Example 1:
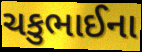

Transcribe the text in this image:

ચકુભાઈના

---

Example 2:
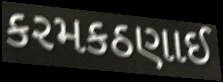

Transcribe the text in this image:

કરમકઠણાઈ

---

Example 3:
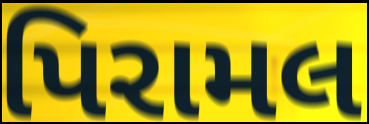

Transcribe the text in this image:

પિરામલ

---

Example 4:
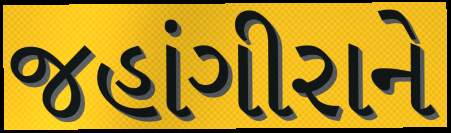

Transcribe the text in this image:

જહાંગીરાને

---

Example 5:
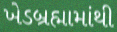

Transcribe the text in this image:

ખેડબ્રહ્મામાંથી